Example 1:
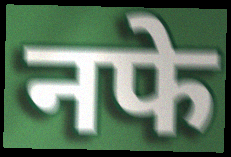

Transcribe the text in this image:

नफे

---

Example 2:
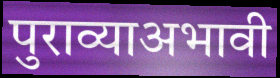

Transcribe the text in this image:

पुराव्याअभावी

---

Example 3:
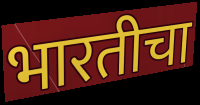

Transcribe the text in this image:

भारतीचा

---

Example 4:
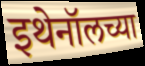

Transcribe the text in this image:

इथेनॉलच्या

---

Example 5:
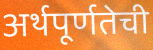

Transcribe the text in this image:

अर्थपूर्णतेची